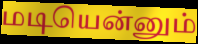
மடியென்னும்